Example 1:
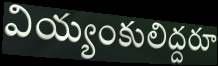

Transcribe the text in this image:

వియ్యంకులిద్దరూ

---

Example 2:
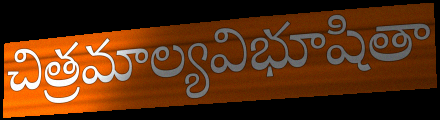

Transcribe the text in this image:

చిత్రమాల్యవిభూషితా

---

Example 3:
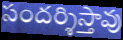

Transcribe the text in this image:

సందర్శిస్తావు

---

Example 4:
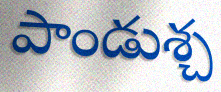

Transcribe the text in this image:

పాండుశ్చ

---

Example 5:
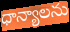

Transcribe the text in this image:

ధాన్యాలను